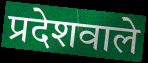
प्रदेशवाले